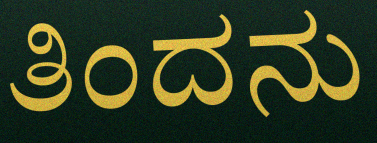
ತಿಂದನು